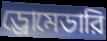
ড্রোমেডারি